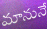
మానునే